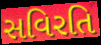
સવિરતિ